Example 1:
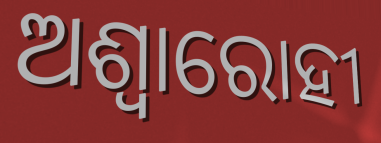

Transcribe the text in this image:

ଅଶ୍ଵାରୋହୀ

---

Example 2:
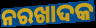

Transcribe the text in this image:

ନରଖାଦକ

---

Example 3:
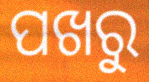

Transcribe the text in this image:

ପଖରୁ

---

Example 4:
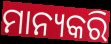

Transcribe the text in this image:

ମାନ୍ୟକରି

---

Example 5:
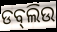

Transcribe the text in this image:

ଡବ୍‍ଲିଉ